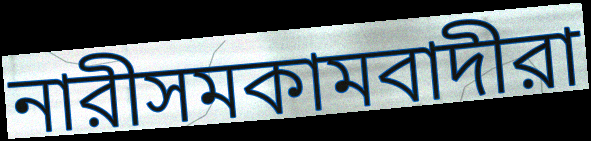
নারীসমকামবাদীরা